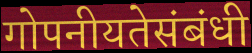
गोपनीयतेसंबंधी